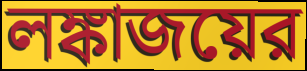
লঙ্কাজয়ের